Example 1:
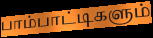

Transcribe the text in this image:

பாம்பாட்டிகளும்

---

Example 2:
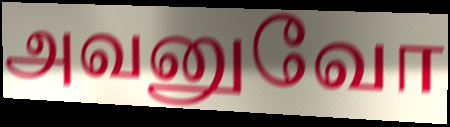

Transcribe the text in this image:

அவனுவோ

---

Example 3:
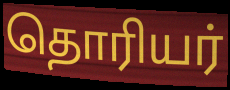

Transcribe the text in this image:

தொரியர்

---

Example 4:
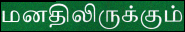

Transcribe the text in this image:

மனதிலிருக்கும்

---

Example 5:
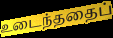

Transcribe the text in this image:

உடைந்ததைப்